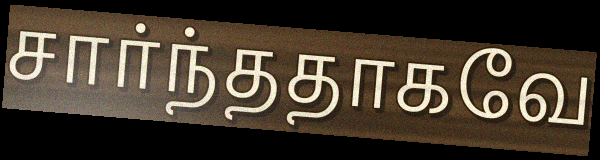
சார்ந்ததாகவே